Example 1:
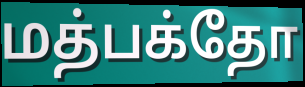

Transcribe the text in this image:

மத்பக்தோ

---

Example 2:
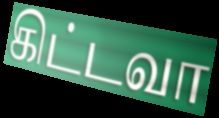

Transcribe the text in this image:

கிட்டவா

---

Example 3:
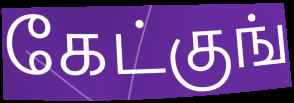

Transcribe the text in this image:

கேட்குங்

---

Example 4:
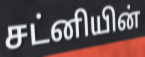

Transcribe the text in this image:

சட்னியின்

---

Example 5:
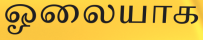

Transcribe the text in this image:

ஓலையாக